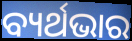
ବ୍ୟର୍ଥଭାର